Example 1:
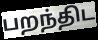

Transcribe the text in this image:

பறந்திட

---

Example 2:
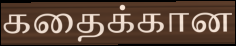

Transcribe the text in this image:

கதைக்கான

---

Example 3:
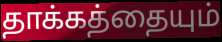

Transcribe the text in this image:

தாக்கத்தையும்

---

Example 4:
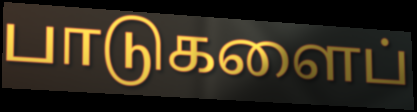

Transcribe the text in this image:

பாடுகளைப்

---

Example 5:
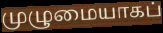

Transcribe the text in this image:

முழுமையாகப்